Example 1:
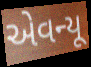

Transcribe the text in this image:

એવન્યૂ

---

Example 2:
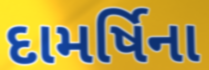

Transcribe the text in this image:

દામર્ષિના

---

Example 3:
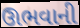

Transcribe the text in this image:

ઊભવાની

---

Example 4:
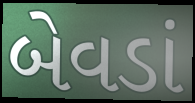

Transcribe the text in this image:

બેવડાં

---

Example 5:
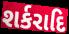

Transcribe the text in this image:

શર્કરાદિ